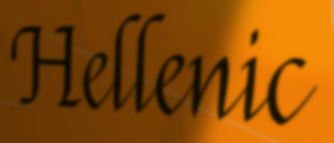
Hellenic